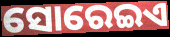
ସୋରେଇଏ